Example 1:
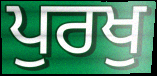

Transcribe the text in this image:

ਪੁਰਖੁ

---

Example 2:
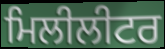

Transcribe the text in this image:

ਮਿਲੀਲੀਟਰ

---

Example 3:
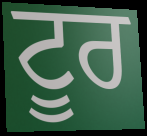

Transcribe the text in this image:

ਟੂਰ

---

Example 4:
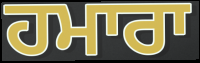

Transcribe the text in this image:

ਹਮਾਰਾ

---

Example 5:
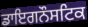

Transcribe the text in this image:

ਡਾਇਗਨੌਸਟਿਕ